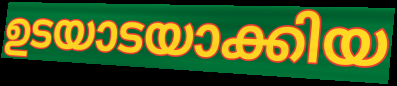
ഉടയാടയാക്കിയ